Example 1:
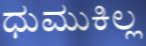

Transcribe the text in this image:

ಧುಮುಕಿಲ್ಲ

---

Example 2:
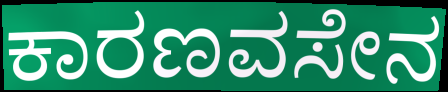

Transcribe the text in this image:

ಕಾರಣವಸೇನ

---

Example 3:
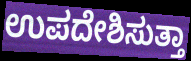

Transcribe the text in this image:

ಉಪದೇಶಿಸುತ್ತಾ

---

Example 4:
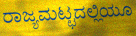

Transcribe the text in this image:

ರಾಜ್ಯಮಟ್ಟದಲ್ಲಿಯೂ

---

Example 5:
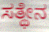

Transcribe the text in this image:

ಸತ್ಥೇನ